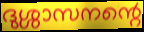
ദുശ്ശാസനന്റെ